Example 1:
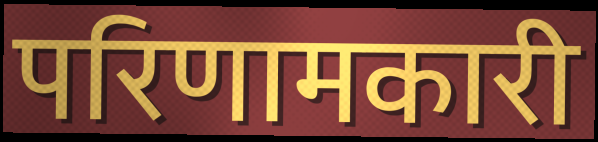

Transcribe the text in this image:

परिणामकारी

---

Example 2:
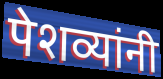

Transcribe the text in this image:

पेशव्यांनी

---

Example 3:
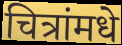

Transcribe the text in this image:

चित्रांमधे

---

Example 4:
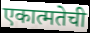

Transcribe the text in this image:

एकात्मतेची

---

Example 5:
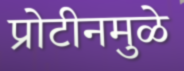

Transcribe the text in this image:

प्रोटीनमुळे